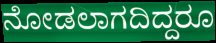
ನೋಡಲಾಗದಿದ್ದರೂ